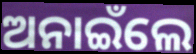
ଅନାଇଁଲେ